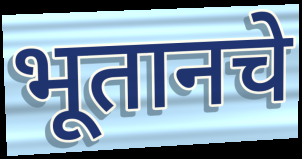
भूतानचे